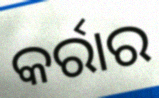
କର୍ରାର